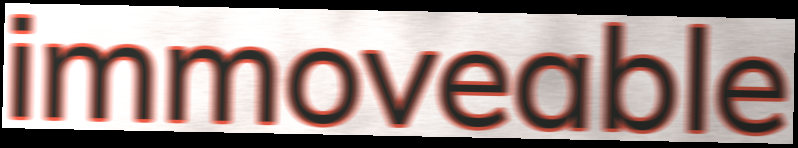
immoveable